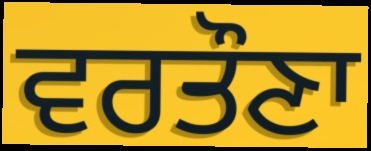
ਵਰਤੌਣਾ